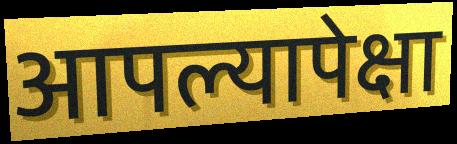
आपल्यापेक्षा